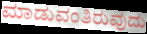
ಮಾಡುವಂತಿರುವುದು